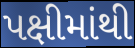
પક્ષીમાંથી